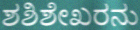
ಶಶಿಶೇಖರನು